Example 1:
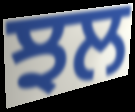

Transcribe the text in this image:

ਝਲ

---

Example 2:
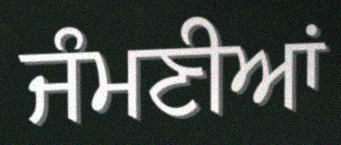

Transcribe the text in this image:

ਜੰਮਣੀਆਂ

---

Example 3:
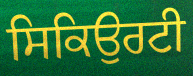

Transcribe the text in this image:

ਸਿਕਿਉਰਟੀ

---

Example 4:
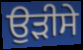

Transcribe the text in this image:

ਉੜੀਸੇ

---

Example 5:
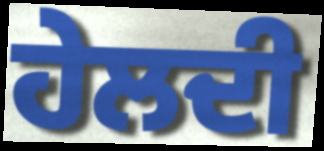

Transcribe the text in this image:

ਹੇਲਦੀ